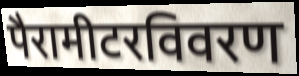
पैरामीटरविवरण